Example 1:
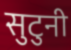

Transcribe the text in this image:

सुटुनी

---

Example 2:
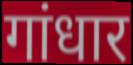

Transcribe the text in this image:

गांधार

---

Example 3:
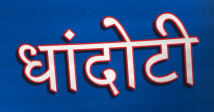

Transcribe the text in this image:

धांदोटी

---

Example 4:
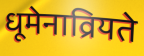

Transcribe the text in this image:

धूमेनाव्रियते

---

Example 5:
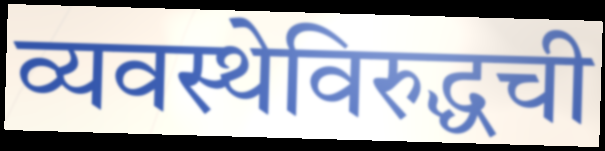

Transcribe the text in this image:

व्यवस्थेविरुद्धची